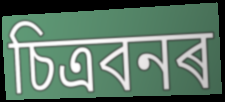
চিত্ৰবনৰ